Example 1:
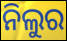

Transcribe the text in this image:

ନିଲୁର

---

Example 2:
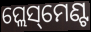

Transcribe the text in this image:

ପ୍ଲେସ୍‌ମେଣ୍ଟ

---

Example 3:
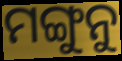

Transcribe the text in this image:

ମଙ୍ଗୁନୁ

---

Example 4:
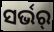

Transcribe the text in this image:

ସର୍ଭର୍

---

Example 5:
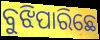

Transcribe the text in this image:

ବୁଝିପାରିଛେ